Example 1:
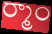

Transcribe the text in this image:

ర్మాం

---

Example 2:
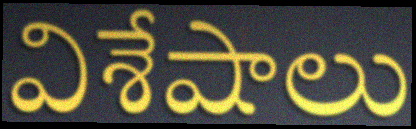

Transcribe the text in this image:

విశేషాలు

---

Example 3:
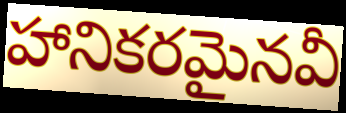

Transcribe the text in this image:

హానికరమైనవీ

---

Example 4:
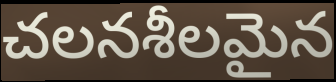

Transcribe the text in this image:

చలనశీలమైన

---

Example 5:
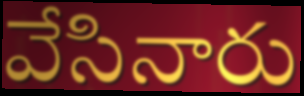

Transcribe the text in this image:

వేసినారు